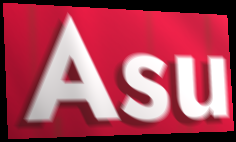
Asu